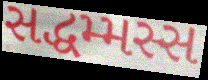
સદ્ધમ્મસ્સ